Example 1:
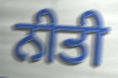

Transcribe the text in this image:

ਨੀਤੀ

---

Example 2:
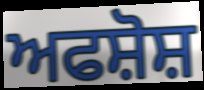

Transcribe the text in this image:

ਅਫਸ਼ੋਸ਼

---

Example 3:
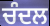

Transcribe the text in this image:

ਚੰਦਲ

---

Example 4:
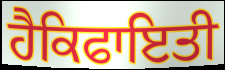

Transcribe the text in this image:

ਹੈਕਿਫਾਇਤੀ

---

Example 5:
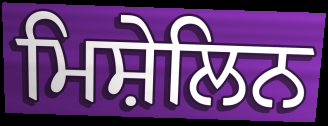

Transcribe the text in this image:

ਮਿਸ਼ੇਲਿਨ